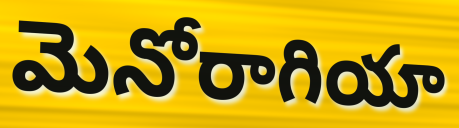
మెనోరాగియా